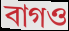
বাগও